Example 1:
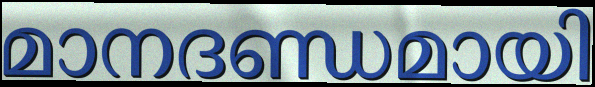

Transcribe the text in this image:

മാനദണ്ഡമായി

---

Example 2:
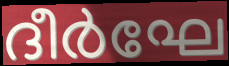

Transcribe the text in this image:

ദീർഘേ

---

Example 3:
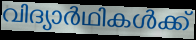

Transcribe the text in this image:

വിദ്യാർഥികൾക്ക്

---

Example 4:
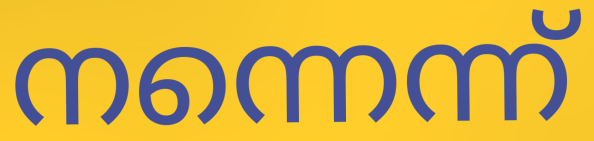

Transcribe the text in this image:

നന്നെന്ന്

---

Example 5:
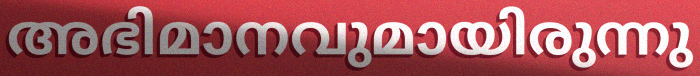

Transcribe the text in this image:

അഭിമാനവുമായിരുന്നു